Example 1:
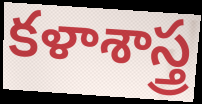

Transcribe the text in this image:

కళాశాస్త్ర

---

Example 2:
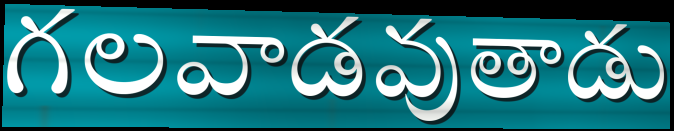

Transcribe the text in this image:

గలవాడవుతాడు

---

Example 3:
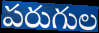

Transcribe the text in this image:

పరుగుల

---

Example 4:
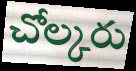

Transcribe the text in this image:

చోల్కరు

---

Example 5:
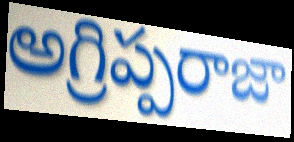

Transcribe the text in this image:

అగ్రిప్పరాజా